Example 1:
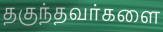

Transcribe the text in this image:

தகுந்தவர்களை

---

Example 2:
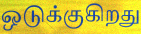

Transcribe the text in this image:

ஒடுக்குகிறது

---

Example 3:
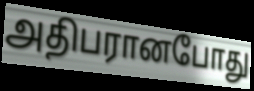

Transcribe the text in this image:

அதிபரானபோது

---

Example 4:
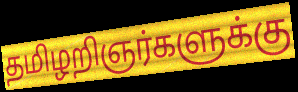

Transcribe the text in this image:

தமிழறிஞர்களுக்கு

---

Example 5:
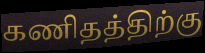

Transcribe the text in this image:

கணிதத்திற்கு